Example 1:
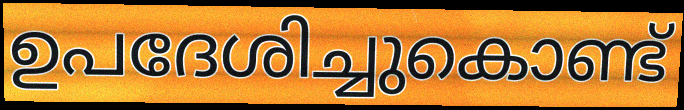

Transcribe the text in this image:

ഉപദേശിച്ചുകൊണ്ട്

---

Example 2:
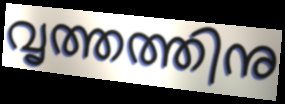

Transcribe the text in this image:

വൃത്തത്തിനു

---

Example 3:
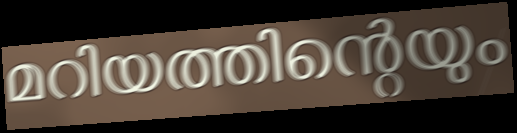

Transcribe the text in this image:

മറിയത്തിന്റെയും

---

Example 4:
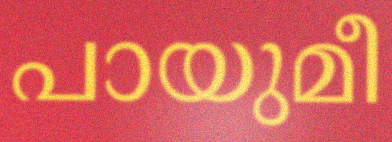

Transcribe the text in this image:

പായുമീ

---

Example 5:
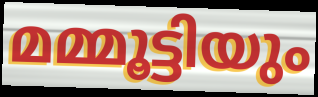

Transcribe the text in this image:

മമ്മൂട്ടിയും